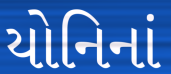
યોનિનાં